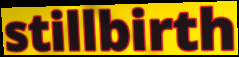
stillbirth